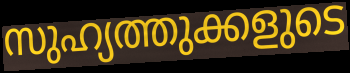
സുഹ്യത്തുക്കളുടെ